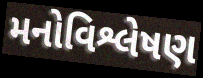
મનોવિશ્લેષણ